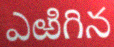
ఎఱిగిన